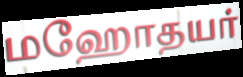
மஹோதயர்